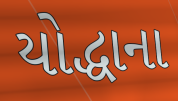
યોદ્ધાના